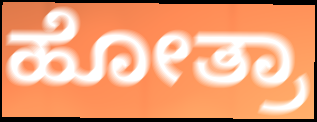
ಹೋತ್ರಾ